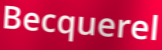
Becquerel